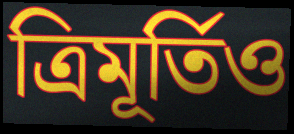
ত্ৰিমূৰ্তিও